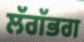
ਲੱਗੱਭਗ